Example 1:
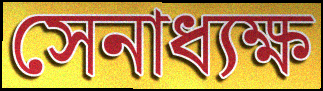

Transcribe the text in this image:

সেনাধ্যক্ষ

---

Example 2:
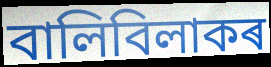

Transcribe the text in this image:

বালিবিলাকৰ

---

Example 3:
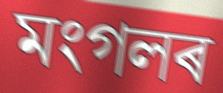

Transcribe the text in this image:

মংগলৰ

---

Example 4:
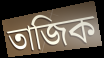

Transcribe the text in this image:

তাজিক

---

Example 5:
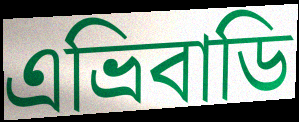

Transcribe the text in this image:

এভ্ৰিবাডি